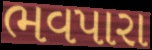
ભવપારા